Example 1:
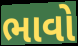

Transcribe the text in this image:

ભાવો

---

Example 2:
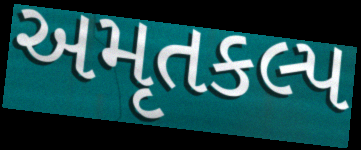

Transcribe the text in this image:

અમૃતકલ્પ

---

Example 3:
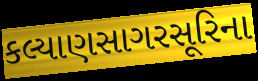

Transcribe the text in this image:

કલ્યાણસાગરસૂરિના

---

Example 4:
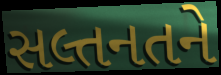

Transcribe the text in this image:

સલ્તનતને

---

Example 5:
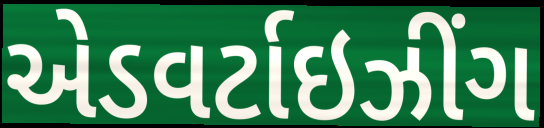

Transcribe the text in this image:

એડવર્ટાઇઝીંગ